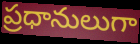
ప్రధానులుగా